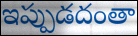
ఇప్పుడదంతా